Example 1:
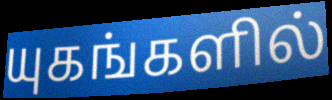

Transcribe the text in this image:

யுகங்களில்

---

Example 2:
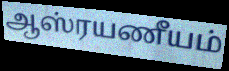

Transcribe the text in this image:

ஆஸ்ரயணீயம்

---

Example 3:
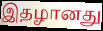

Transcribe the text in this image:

இதழானது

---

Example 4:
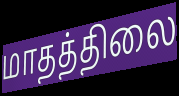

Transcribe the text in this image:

மாதத்திலை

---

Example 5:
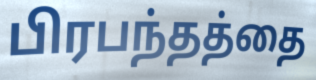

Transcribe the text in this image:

பிரபந்தத்தை